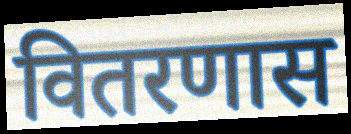
वितरणास